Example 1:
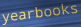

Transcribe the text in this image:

yearbooks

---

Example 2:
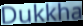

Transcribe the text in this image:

Dukkha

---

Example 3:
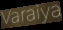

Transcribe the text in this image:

Varaiya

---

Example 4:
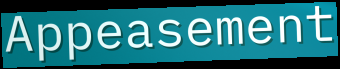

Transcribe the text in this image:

Appeasement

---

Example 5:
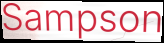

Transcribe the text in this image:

Sampson